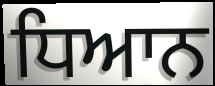
ਧਿਆਨ